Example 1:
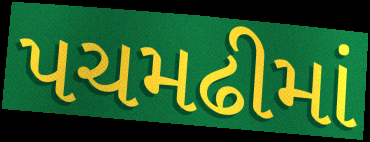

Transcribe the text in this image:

પચમઢીમાં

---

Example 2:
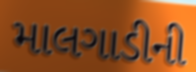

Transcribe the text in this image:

માલગાડીની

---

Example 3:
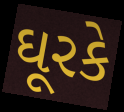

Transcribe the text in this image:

ઘૂરકે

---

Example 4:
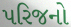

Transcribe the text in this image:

પરિજનો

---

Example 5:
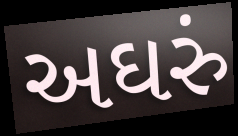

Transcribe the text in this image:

અઘરું